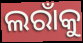
ଲରାଁକୁ